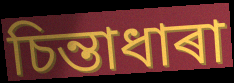
চিন্তাধাৰা